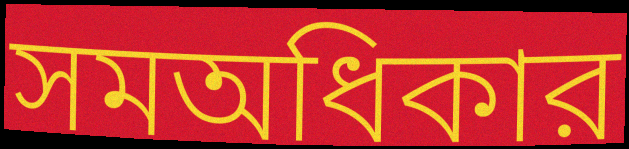
সমঅধিকার